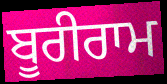
ਬੂਰੀਰਾਮ